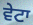
ਵੇਟਾ